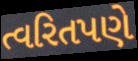
ત્વરિતપણે